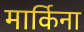
मार्किना